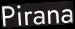
Pirana